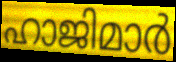
ഹാജിമാർ